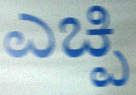
ಎಚ್ಪಿ